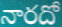
నారదో